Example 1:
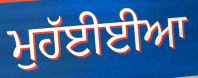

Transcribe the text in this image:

ਮੁਹੱਈਈਆ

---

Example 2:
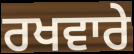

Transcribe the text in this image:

ਰਖਵਾਰੇ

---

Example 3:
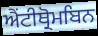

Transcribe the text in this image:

ਐਂਟੀਥ੍ਰੋਮਬਿਨ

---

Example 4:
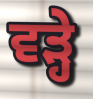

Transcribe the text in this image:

ਵੜ੍ਹੇ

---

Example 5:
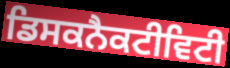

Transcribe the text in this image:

ਡਿਸਕਨੈਕਟੀਵਿਟੀ